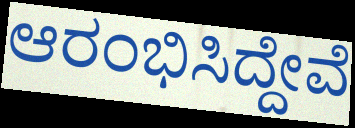
ಆರಂಭಿಸಿದ್ದೇವೆ